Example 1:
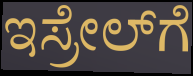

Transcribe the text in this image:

ಇಸ್ರೇಲ್‍ಗೆ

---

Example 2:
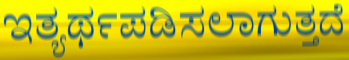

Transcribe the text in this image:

ಇತ್ಯರ್ಥಪಡಿಸಲಾಗುತ್ತದೆ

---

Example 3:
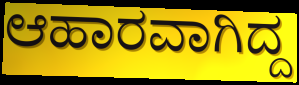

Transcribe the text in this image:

ಆಹಾರವಾಗಿದ್ದ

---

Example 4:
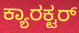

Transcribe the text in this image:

ಕ್ಯಾರಕ್ಟರ್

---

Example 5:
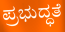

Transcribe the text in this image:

ಪ್ರಭುದ್ಧತೆ